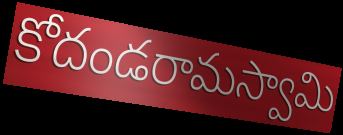
కోదండరామస్వామి